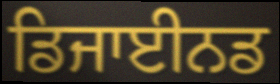
ਡਿਜਾਈਨਡ